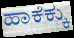
ಹಾಕೆಕ್ಕು